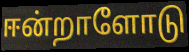
ஈன்றாளோடு